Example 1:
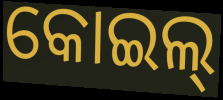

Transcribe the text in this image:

କୋଇଲ୍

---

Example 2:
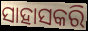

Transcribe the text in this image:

ସାହାସକରି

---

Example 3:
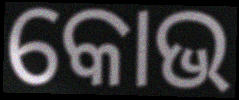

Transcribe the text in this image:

କୋଭ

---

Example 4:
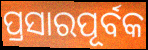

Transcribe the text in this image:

ପ୍ରସାରପୂର୍ବକ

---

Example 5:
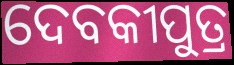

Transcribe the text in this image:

ଦେବକୀପୁତ୍ର